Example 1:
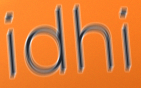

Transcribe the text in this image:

idhi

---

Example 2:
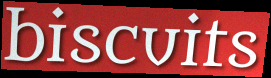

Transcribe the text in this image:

biscuits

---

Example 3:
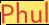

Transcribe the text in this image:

Phul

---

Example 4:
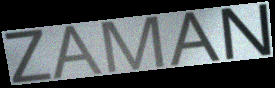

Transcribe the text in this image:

ZAMAN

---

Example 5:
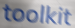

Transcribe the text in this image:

toolkit